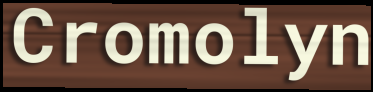
Cromolyn